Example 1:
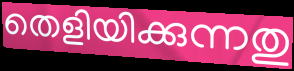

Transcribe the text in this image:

തെളിയിക്കുന്നതു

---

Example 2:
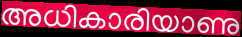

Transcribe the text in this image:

അധികാരിയാണു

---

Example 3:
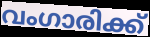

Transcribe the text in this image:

വംഗാരിക്ക്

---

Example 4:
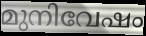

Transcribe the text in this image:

മുനിവേഷം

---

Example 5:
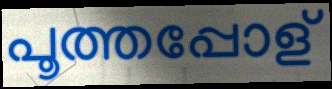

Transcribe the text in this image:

പൂത്തപ്പോള്